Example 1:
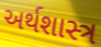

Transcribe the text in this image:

અર્થશાસ્ત્ર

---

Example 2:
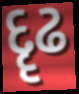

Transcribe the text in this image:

દૄઢ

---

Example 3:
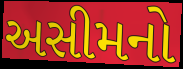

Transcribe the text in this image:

અસીમનો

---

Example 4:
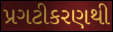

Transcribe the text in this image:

પ્રગટીકરણથી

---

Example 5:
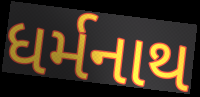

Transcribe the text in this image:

ધર્મનાથ